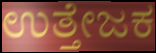
ಉತ್ತೇಜಕ